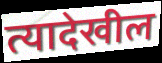
त्यादेखील